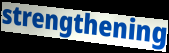
strengthening